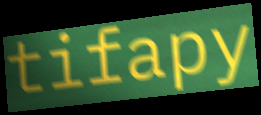
tifapy